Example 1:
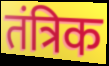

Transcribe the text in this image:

तंत्रिक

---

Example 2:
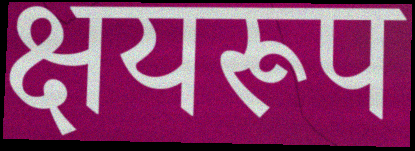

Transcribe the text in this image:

क्षयरूप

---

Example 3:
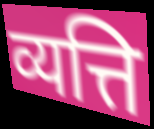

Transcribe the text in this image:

व्यत्ति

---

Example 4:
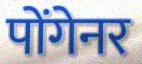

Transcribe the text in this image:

पोंगेनर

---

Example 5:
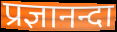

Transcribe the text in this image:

प्रज्ञानन्दा